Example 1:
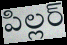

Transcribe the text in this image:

పిల్లర్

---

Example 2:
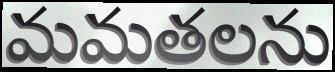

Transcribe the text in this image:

మమతలను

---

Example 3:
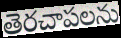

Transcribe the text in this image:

తెరచాపలను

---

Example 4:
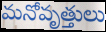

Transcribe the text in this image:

మనోవృత్తులు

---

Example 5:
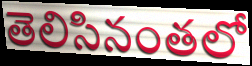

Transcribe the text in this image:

తెలిసినంతలో